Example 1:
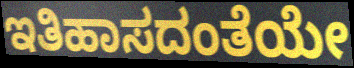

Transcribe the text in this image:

ಇತಿಹಾಸದಂತೆಯೇ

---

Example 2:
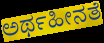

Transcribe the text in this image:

ಅರ್ಥಹೀನತೆ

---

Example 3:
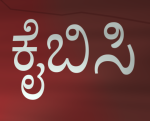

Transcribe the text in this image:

ಕೈಬಿಸಿ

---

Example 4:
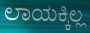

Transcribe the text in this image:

ಲಾಯಕ್ಕಿಲ್ಲ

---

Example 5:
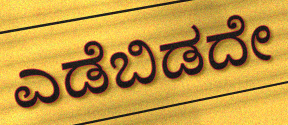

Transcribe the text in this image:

ಎಡೆಬಿಡದೇ